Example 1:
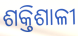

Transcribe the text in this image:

ଶକ୍ତିଶାଳୀ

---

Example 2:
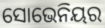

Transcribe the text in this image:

ସୋଭେନିୟର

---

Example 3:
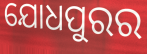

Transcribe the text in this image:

ଯୋଧପୁରର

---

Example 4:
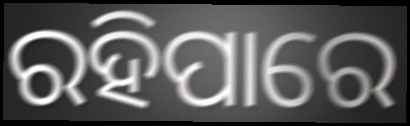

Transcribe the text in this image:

ରହିପାରେ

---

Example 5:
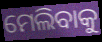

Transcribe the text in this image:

ମେଲିବାକୁ